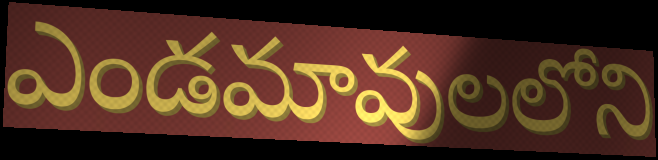
ఎండమావులలోని